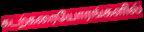
கடற்கரையோரங்களில்